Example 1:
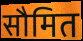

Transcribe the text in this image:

सौमित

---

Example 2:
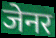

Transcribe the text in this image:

जेनर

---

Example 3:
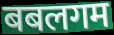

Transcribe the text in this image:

बबलगम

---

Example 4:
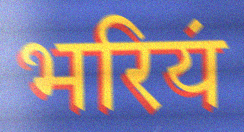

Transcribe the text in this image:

भरियं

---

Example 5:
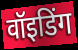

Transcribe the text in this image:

वॉइडिंग